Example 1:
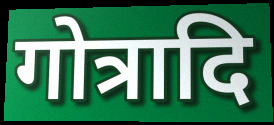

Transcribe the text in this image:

गोत्रादि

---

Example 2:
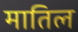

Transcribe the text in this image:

मातिल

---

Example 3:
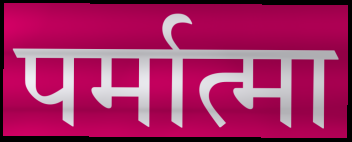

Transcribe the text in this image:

पर्मात्मा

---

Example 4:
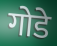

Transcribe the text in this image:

गोडे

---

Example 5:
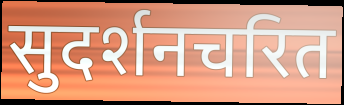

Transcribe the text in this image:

सुदर्शनचरित